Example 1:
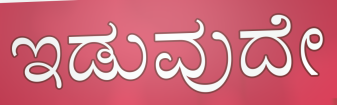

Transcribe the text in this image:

ಇಡುವುದೇ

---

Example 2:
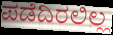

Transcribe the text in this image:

ಪಡೆದಿರಲಿಲ್ಲ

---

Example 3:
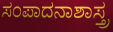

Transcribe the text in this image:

ಸಂಪಾದನಾಶಾಸ್ತ್ರ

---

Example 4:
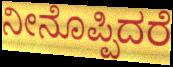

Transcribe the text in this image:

ನೀನೊಪ್ಪಿದರೆ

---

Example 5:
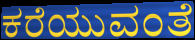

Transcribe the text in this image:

ಕರೆಯುವಂತೆ